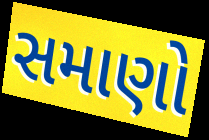
સમાણો